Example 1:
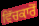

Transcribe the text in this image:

ਵਿੱਚਕਾਰੋਂ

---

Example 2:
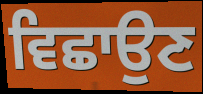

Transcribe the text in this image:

ਵਿਛਾਉਣ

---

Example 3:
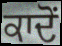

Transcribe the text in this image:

ਕਾਦੋਂ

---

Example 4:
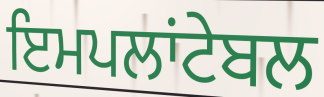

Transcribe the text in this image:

ਇਮਪਲਾਂਟੇਬਲ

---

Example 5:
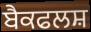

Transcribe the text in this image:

ਬੈਕਫਲਸ਼